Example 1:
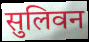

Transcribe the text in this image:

सुलिवन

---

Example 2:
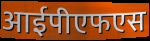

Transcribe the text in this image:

आईपीएफएस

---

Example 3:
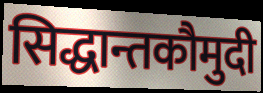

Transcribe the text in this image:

सिद्धान्तकौमुदी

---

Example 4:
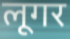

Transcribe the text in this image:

लूगर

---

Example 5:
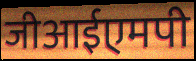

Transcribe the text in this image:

जीआईएमपी